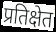
प्रतिक्षेत